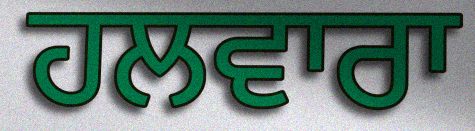
ਹਲਵਾਰਾ